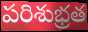
పరిశుభ్రత